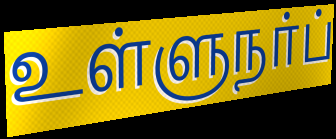
உள்ளுநர்ப்